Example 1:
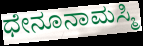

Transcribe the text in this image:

ಧೇನೂನಾಮಸ್ಮಿ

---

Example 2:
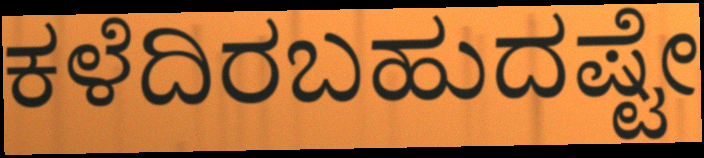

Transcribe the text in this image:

ಕಳೆದಿರಬಹುದಷ್ಟೇ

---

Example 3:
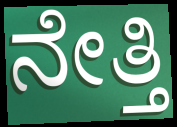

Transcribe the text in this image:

ನೇತ್ತಿ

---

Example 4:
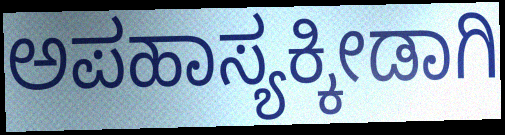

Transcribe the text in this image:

ಅಪಹಾಸ್ಯಕ್ಕೀಡಾಗಿ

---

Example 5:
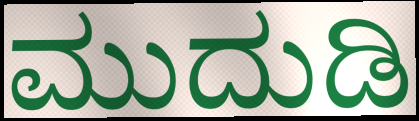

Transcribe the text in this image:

ಮುದುಡಿ